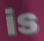
is